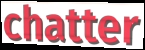
chatter